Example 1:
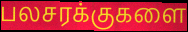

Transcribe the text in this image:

பலசரக்குகளை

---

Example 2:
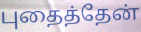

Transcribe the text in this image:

புதைத்தேன்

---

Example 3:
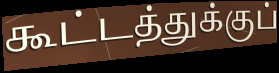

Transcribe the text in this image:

கூட்டத்துக்குப்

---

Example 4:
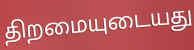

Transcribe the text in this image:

திறமையுடையது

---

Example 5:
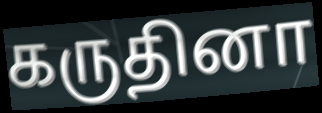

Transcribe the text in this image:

கருதினா